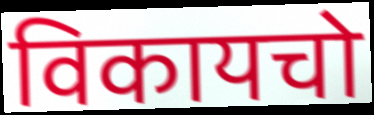
विकायचो